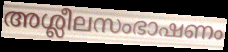
അശ്ലീലസംഭാഷണം